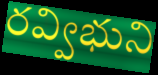
రవ్విభుని